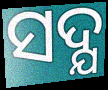
ସଦ୍ଯ